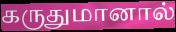
கருதுமானால்